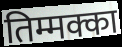
तिम्मक्का